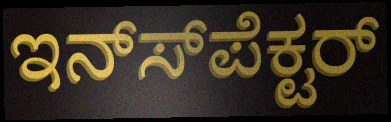
ಇನ್ಸ್‍ಪೆಕ್ಟರ್